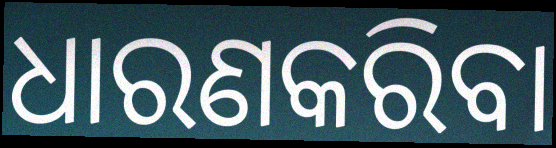
ଧାରଣକରିବା